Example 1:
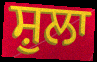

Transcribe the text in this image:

ਸ਼ੁਲਾ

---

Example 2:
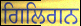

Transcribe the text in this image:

ਗਿਲਿਗਨ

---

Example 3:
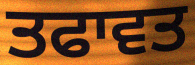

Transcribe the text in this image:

ਤਫਾਵਤ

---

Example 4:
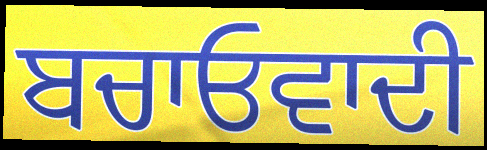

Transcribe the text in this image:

ਬਚਾਓਵਾਦੀ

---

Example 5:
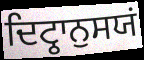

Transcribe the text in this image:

ਦਿਟ੍ਠਾਨੁਸਯਂ